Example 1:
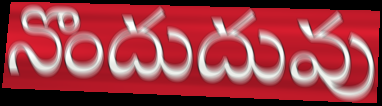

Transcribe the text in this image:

నొందుదువు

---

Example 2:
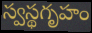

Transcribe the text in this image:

స్వస్థగృహం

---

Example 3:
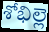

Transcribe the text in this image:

శోభిల్లె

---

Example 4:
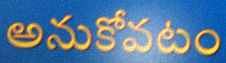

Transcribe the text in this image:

అనుకోవటం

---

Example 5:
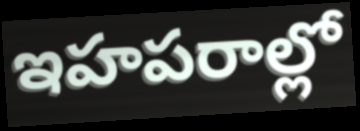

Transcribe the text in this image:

ఇహపరాల్లో